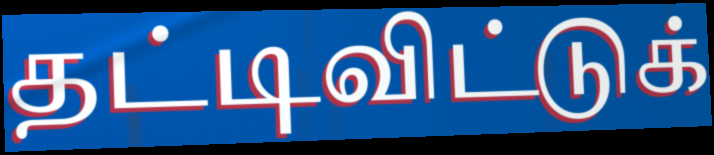
தட்டிவிட்டுக்